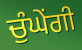
ਚੁੰਘੇਂਗੀ